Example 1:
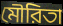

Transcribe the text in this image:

মৌরিতা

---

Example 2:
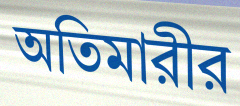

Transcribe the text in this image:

অতিমারীর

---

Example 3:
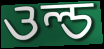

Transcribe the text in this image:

ওল্ড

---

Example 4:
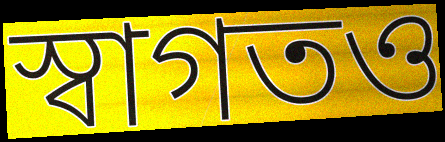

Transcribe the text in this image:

স্বাগতও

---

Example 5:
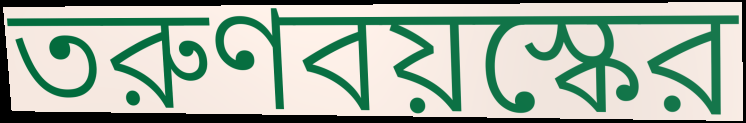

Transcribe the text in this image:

তরুণবয়স্কের